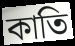
কাতি